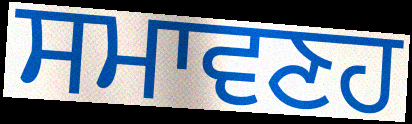
ਸਮਾਵਣਹ